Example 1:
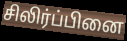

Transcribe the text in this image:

சிலிர்ப்பினை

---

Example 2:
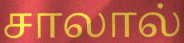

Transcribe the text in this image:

சாலால்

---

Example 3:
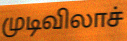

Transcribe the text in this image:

முடிவிலாச்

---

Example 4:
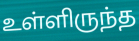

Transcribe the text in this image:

உள்ளிருந்த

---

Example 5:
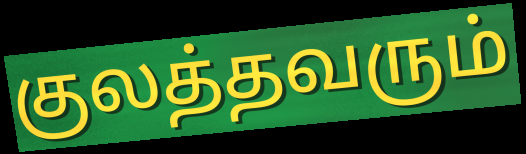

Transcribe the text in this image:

குலத்தவரும்